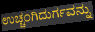
ಉಚ್ಚಂಗಿದುರ್ಗವನ್ನು